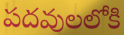
పదవులలోకి